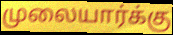
முலையார்க்கு